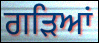
ਗੜਿਆਂ